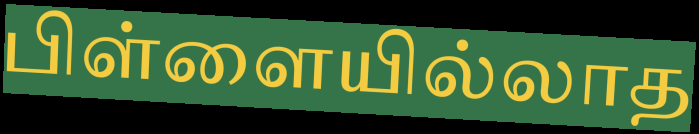
பிள்ளையில்லாத